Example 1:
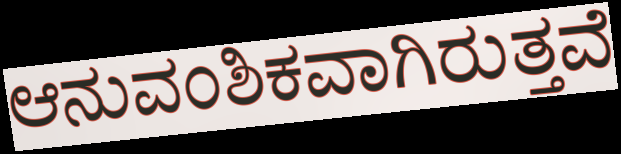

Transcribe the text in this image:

ಆನುವಂಶಿಕವಾಗಿರುತ್ತವೆ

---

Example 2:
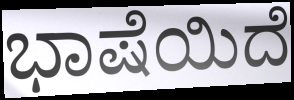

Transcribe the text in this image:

ಭಾಷೆಯಿದೆ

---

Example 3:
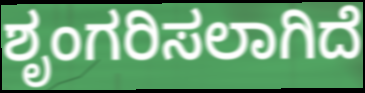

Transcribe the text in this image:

ಶೃಂಗರಿಸಲಾಗಿದೆ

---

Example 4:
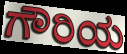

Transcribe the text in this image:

ಗೌರಿಯ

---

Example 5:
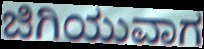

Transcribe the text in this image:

ಜಿಗಿಯುವಾಗ